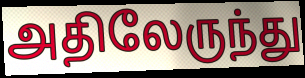
அதிலேருந்து